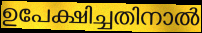
ഉപേക്ഷിച്ചതിനാൽ